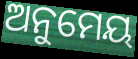
ଅନୁମେୟ